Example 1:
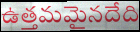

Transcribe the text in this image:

ఉత్తమమైనదేది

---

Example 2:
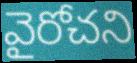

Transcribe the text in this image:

వైరోచని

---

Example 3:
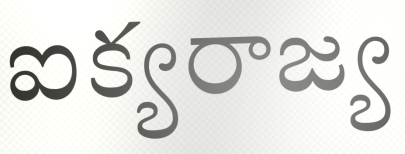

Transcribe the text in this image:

ఐక్యరాజ్య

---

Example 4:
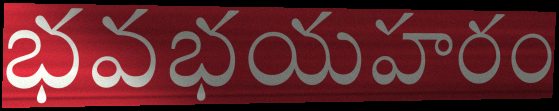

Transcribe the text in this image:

భవభయహరం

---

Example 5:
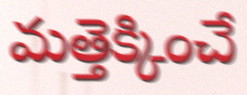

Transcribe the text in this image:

మత్తెక్కించే